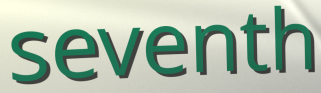
seventh